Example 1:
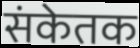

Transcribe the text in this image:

संकेतक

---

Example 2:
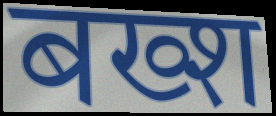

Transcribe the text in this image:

बख्श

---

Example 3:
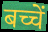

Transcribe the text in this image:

बच्चें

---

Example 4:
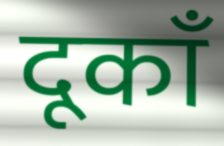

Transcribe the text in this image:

दूकाँ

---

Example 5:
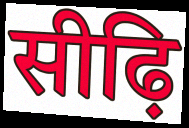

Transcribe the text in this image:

सीढ़ि